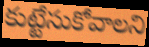
కుట్టేసుకోవాలని